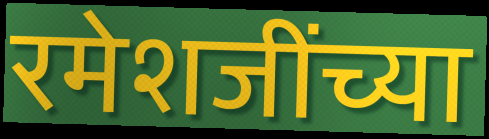
रमेशजींच्या